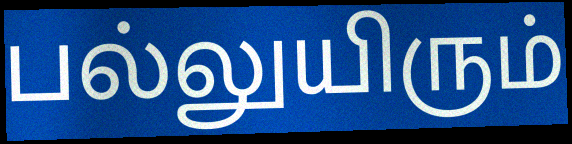
பல்லுயிரும்